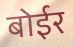
बोईर